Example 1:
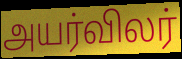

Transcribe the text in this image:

அயர்விலர்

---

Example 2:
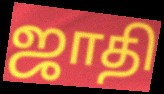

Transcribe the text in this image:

ஜாதி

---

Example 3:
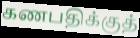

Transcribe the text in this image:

கணபதிக்குத்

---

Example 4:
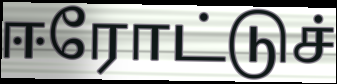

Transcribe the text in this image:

ஈரோட்டுச்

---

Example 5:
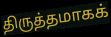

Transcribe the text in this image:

திருத்தமாகக்